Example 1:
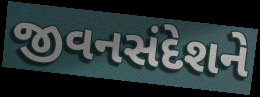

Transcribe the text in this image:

જીવનસંદેશને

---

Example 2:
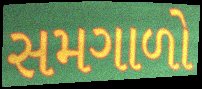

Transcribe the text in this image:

સમગાળો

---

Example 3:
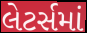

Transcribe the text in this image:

લેટર્સમાં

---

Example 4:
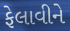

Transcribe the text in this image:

ફેલાવીને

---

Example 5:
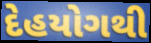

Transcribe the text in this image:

દેહયોગથી